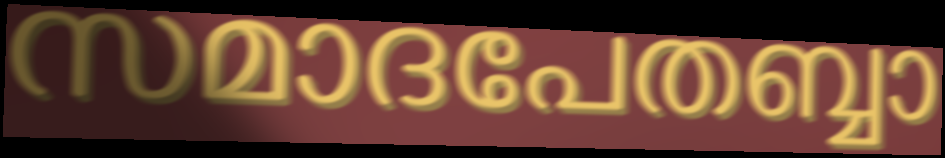
സമാദപേതബ്ബാ